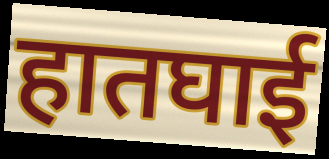
हातघाई